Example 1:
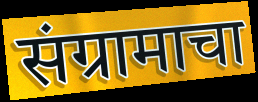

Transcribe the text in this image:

संग्रामाचा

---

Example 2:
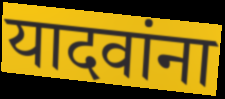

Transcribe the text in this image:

यादवांना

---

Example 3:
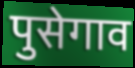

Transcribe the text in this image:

पुसेगाव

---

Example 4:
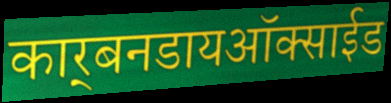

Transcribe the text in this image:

कार्बनडायऑक्साईड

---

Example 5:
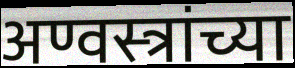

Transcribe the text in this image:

अण्वस्त्रांच्या